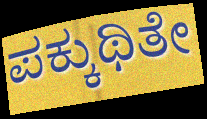
ಪಕ್ಕುಥಿತೇ